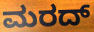
ಮರದ್